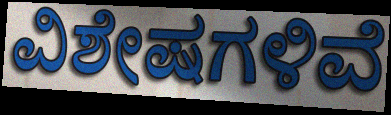
ವಿಶೇಷಗಳಿವೆ